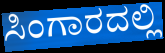
ಸಿಂಗಾರದಲ್ಲಿ